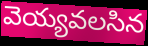
వెయ్యవలసిన